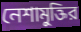
নেশামুক্তির